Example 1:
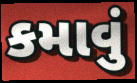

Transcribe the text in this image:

કમાવું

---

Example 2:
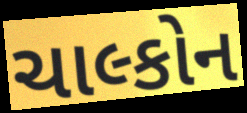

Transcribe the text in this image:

ચાલ્કોન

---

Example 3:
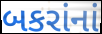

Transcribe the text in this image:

બકરાંનાં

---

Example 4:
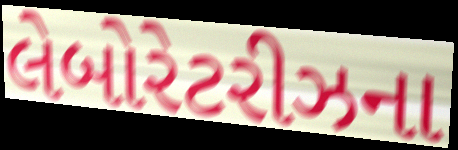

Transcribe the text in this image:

લેબોરેટરીઝના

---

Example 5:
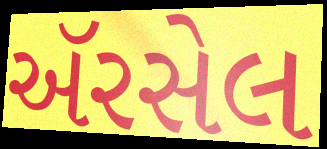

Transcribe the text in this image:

ઍરસેલ